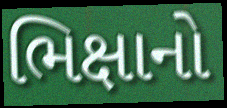
ભિક્ષાનો